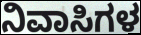
ನಿವಾಸಿಗಳ